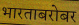
भारताबरोबर